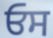
ਓਸ